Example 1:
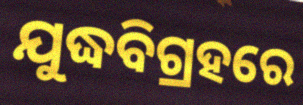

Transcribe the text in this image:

ଯୁଦ୍ଧବିଗ୍ରହରେ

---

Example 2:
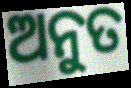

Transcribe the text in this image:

ଅନୁତ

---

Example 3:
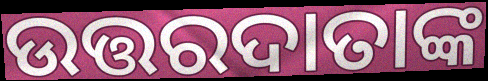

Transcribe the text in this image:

ଉତ୍ତରଦାତାଙ୍କ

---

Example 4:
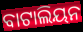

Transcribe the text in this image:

ବାଟାଲିୟନ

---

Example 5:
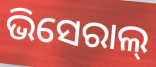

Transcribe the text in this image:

ଭିସେରାଲ୍